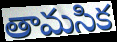
తామసిక